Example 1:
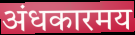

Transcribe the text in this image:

अंधकारमय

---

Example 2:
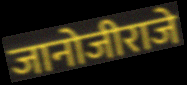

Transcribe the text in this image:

जानोजीराजे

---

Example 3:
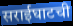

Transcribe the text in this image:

सराईघाटची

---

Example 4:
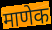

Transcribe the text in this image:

माणेक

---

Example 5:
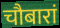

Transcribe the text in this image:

चौबारां